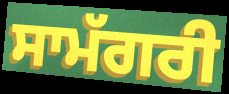
ਸਾਮੱਗਰੀ